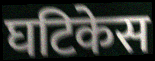
घटिकेस